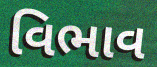
વિભાવ